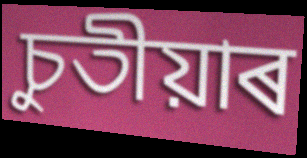
চুতীয়াৰ